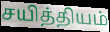
சயித்தியம்